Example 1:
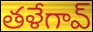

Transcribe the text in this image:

తళేగావ్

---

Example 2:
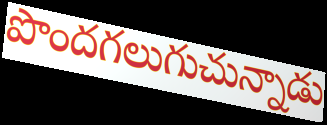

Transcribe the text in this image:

పొందగలుగుచున్నాడు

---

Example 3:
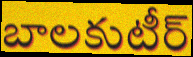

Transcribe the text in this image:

బాలకుటీర్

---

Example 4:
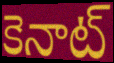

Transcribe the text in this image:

కెనాట్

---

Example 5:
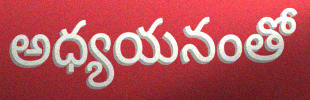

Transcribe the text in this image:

అధ్యయనంతో